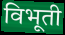
विभूती